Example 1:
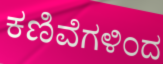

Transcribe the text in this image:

ಕಣಿವೆಗಳಿಂದ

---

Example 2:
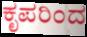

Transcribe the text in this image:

ಕೃಪರಿಂದ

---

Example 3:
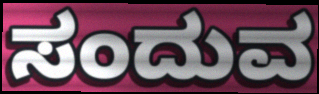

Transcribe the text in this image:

ಸಂದುವ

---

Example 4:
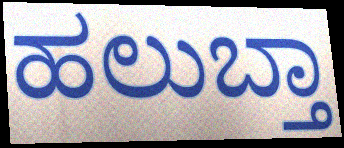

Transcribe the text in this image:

ಹಲುಬ್ತಾ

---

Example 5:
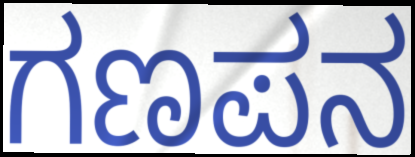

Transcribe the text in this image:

ಗಣಪನ